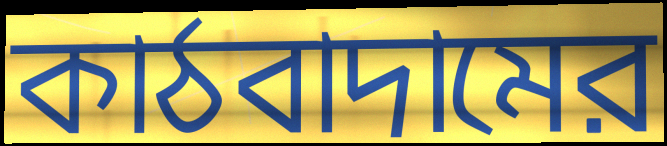
কাঠবাদামের